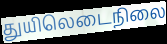
துயிலெடைநிலை